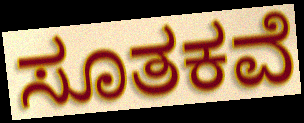
ಸೂತಕವೆ